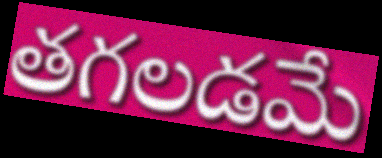
తగలడమే